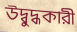
উদ্বুদ্ধকারী